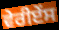
ਵੇਰੀਏਂਸ